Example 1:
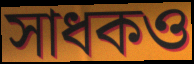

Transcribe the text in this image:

সাধকও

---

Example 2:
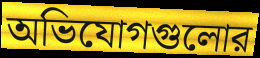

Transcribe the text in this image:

অভিযোগগুলোর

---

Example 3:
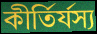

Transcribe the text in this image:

কীর্তির্যস্য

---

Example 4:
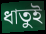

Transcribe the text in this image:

ধাতুই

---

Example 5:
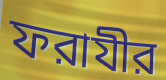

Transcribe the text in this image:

ফরাযীর